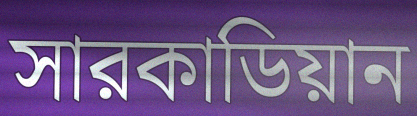
সারকাডিয়ান